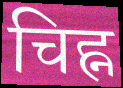
चिह्न